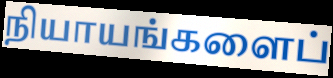
நியாயங்களைப்